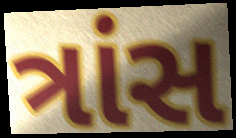
ત્રાંસ